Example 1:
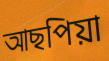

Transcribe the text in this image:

আছপিয়া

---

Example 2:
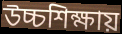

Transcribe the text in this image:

উচ্চশিক্ষায়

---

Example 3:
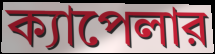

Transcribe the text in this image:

ক্যাপেলার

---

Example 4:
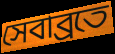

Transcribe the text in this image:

সেবাব্রতে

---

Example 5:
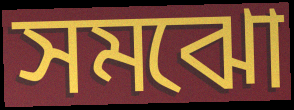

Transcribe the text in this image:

সমঝো